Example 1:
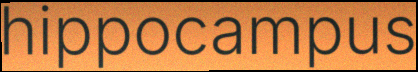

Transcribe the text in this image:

hippocampus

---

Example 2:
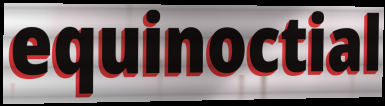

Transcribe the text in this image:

equinoctial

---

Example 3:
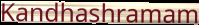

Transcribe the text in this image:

Kandhashramam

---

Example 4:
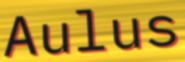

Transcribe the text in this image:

Aulus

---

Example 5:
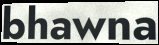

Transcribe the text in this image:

bhawna